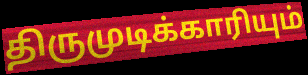
திருமுடிக்காரியும்